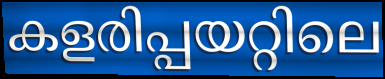
കളരിപ്പയറ്റിലെ